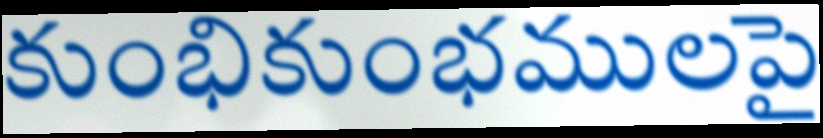
కుంభికుంభములపై